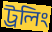
ট্রলিং